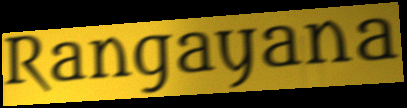
Rangayana